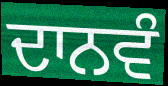
ਦਾਨਵੰ